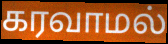
கரவாமல்